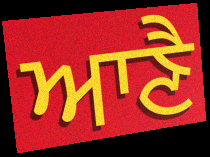
ਆਣੈ